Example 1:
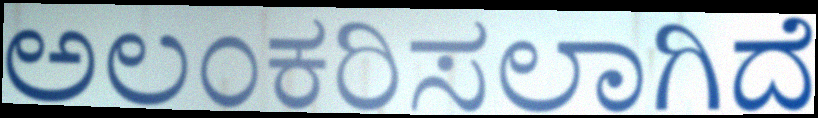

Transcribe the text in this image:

ಅಲಂಕರಿಸಲಾಗಿದೆ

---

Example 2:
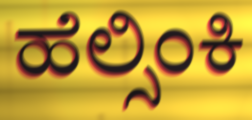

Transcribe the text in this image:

ಹೆಲ್ಸಿಂಕಿ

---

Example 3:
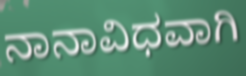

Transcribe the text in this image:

ನಾನಾವಿಧವಾಗಿ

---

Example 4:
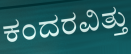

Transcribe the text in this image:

ಕಂದರವಿತ್ತು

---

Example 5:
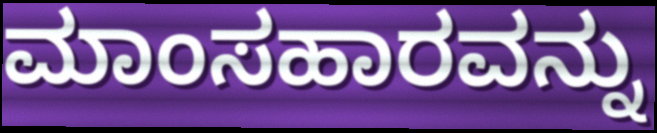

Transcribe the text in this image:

ಮಾಂಸಹಾರವನ್ನು